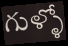
గుళ్ళో